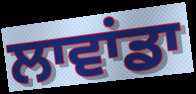
ਲਾਵਾਂਡਾ